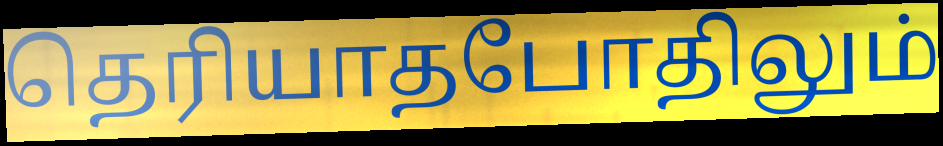
தெரியாதபோதிலும்